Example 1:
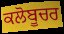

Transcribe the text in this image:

ਕਲੋਬੂਚਰ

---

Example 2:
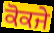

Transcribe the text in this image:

ਕੋਕਜੇ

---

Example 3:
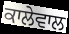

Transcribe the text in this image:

ਕਾਲੇਵਾਲ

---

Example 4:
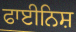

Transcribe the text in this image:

ਫਾਈਨਿਸ਼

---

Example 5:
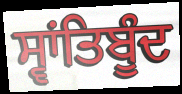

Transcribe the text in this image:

ਸ੍ਵਾਂਤਿਬੂੰਦ